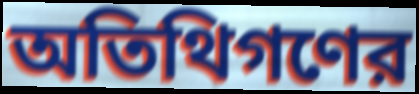
অতিথিগণের